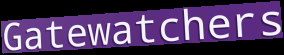
Gatewatchers